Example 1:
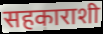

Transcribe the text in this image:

सहकाराशी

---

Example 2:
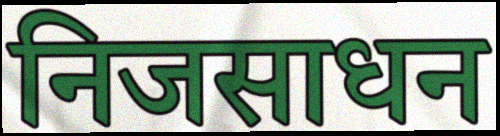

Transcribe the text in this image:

निजसाधन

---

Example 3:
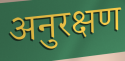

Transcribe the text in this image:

अनुरक्षण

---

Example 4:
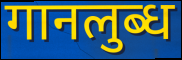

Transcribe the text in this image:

गानलुब्ध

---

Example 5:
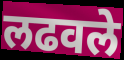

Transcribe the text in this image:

लढवले